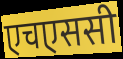
एचएससी